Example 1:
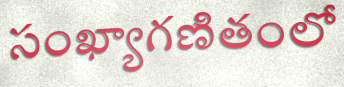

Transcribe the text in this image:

సంఖ్యాగణితంలో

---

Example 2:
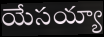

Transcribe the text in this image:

యేసయ్యా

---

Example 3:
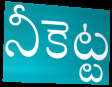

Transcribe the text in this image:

నీకెట్ట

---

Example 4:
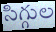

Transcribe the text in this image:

సిగ్గుల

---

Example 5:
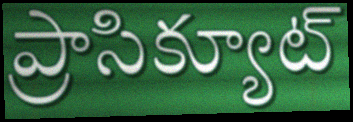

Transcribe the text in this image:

ప్రాసిక్యూట్